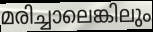
മരിച്ചാലെങ്കിലും